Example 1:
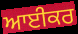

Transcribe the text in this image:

ਆਈਕਰ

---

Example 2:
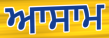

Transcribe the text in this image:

ਆਸਾਮ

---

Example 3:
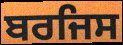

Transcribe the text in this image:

ਬਰਜਿਸ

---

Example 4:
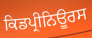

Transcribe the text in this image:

ਕਿਡਪ੍ਰੀਨਿਊਰਸ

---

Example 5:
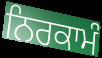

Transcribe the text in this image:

ਨਿਰਕਾਮੰ